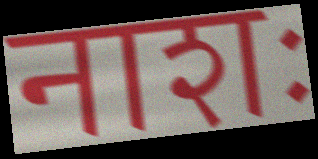
नाशः